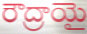
రౌద్రాయై